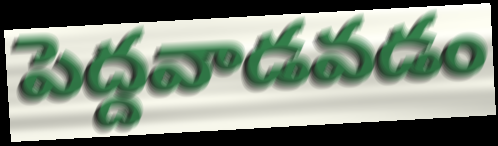
పెద్దవాడవడం